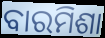
ବାରମିଶା